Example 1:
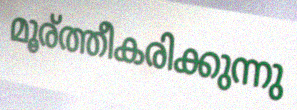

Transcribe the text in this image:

മൂര്ത്തീകരിക്കുന്നു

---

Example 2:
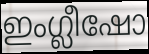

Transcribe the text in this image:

ഇംഗ്ലീഷോ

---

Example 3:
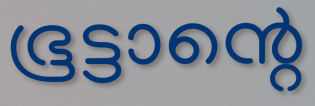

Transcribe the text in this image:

ഭൂട്ടാന്റെ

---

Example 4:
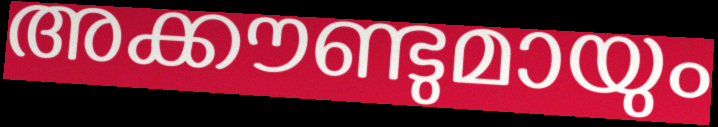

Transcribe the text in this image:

അക്കൗണ്ടുമായും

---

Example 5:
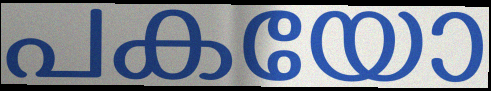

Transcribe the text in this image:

പകയോ